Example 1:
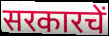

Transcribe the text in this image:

सरकारचें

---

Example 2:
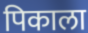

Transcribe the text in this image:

पिकाला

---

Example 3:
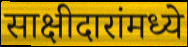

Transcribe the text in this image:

साक्षीदारांमध्ये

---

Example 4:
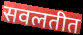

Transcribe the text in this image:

सवलतीत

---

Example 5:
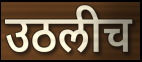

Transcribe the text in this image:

उठलीच